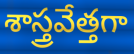
శాస్త్రవేత్తగా